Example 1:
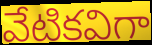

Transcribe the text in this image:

వేటికవిగా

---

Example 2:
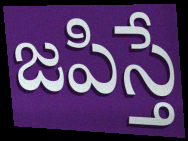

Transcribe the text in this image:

జపిస్తే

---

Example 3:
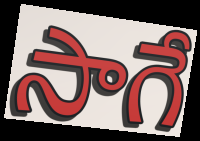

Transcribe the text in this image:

సాగే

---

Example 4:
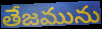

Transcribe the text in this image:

తేజమును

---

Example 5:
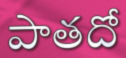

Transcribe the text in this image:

పాతదో